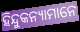
ହିନ୍ଦୁକନ୍ୟାମାନେ